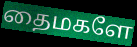
தைமகளே